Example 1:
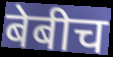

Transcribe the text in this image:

बेबीच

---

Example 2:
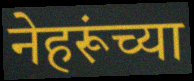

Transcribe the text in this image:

नेहरूंच्या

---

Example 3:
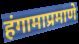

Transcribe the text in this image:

हंगामाप्रमाणे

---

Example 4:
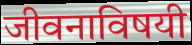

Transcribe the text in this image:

जीवनाविषयी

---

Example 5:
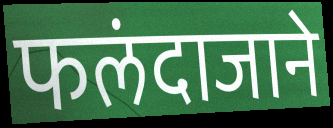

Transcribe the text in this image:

फलंदाजाने